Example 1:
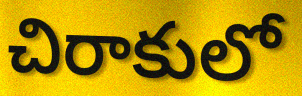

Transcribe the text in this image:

చిరాకులో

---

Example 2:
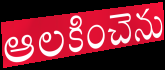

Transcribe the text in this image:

ఆలకించెను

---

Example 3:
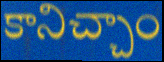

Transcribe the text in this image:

కానిచ్చాం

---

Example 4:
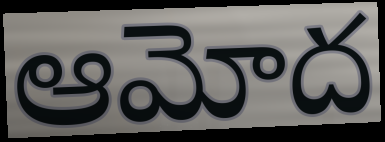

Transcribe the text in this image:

ఆమోద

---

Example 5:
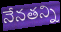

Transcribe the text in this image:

నేనతన్ని